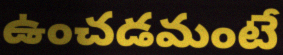
ఉంచడమంటే